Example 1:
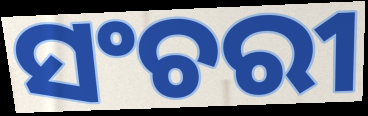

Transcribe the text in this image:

ସଂଚରୀ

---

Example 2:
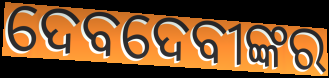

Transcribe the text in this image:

ଦେବଦେବୀଙ୍କର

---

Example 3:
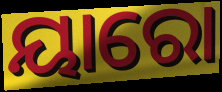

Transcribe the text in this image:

ୟାରୋ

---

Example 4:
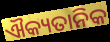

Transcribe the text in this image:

ଐକ୍ୟତାନିକ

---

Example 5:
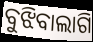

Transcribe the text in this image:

ବୁଝିବାଲାଗି